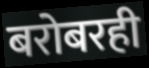
बरोबरही